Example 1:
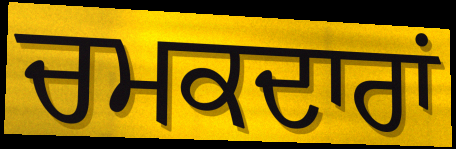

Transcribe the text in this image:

ਚਮਕਦਾਰਾਂ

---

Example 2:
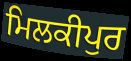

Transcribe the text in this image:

ਮਿਲਕੀਪੁਰ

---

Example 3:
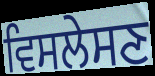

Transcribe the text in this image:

ਵਿਸਲੇਸਣ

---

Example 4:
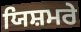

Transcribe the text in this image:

ਯਿਸ਼ਮਰੇ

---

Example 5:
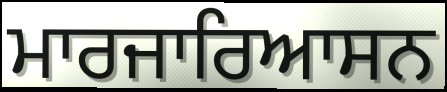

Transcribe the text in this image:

ਮਾਰਜਾਰਿਆਸਨ